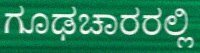
ಗೂಢಚಾರರಲ್ಲಿ